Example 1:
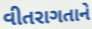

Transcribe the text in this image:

વીતરાગતાને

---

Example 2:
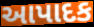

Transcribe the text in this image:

આપાદક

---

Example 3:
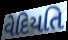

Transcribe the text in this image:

વેદિયતિ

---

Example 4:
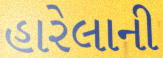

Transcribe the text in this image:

હારેલાની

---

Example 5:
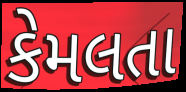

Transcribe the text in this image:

કેમલતા